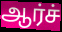
ஆர்ச்